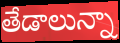
తేడాలున్నా